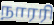
நாரரி